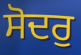
ਸੋਦਰੁ